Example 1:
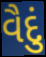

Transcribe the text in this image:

વૈદું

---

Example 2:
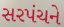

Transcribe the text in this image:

સરપંચને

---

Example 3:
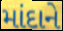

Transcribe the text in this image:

માંદાને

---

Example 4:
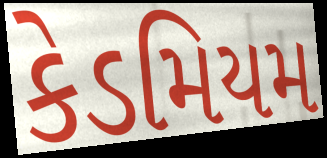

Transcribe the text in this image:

કેડમિયમ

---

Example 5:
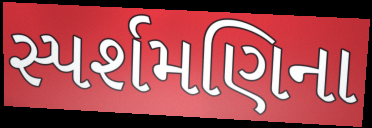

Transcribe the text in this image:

સ્પર્શમણિના